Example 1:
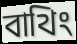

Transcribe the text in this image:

বাথিং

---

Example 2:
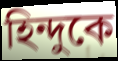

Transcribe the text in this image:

হিন্দুকে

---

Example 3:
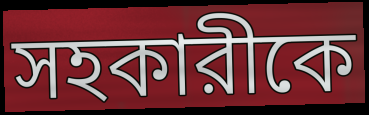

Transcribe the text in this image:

সহকারীকে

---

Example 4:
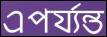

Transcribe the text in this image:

এপর্য্যন্ত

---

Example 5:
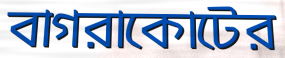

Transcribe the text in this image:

বাগরাকোটের